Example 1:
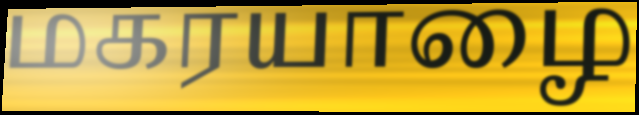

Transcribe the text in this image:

மகரயாழை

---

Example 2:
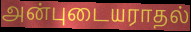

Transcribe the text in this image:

அன்புடையராதல்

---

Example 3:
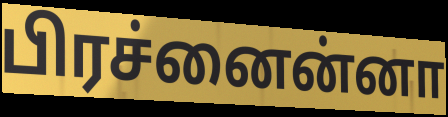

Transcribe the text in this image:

பிரச்னைன்னா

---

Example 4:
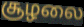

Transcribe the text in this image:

சூழலை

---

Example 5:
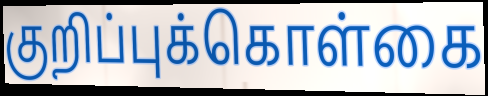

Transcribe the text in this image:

குறிப்புக்கொள்கை